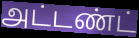
அட்டண்ட்